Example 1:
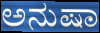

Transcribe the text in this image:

ಅನುಷಾ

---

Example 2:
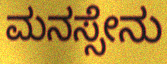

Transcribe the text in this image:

ಮನಸ್ಸೇನು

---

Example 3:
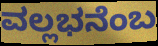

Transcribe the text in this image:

ವಲ್ಲಭನೆಂಬ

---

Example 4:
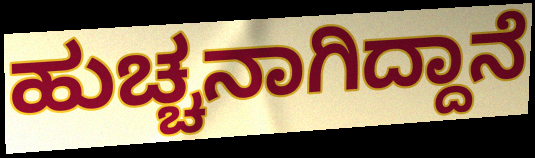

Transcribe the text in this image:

ಹುಚ್ಚನಾಗಿದ್ದಾನೆ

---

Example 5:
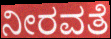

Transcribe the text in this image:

ನೀರವತೆ